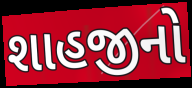
શાહજીનો